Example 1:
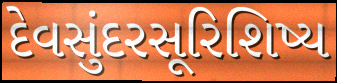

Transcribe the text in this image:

દેવસુંદરસૂરિશિષ્ય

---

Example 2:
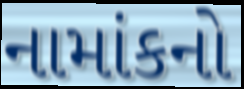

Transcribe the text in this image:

નામાંકનો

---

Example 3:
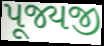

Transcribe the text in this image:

પૂજ્યજી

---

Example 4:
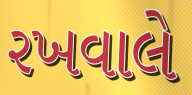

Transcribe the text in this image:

રખવાલે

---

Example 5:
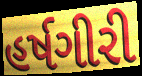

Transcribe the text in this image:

હર્ષગીરી